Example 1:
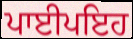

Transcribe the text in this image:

ਪਾਈਪਇਹ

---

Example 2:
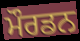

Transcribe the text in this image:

ਮੌਰਡਨ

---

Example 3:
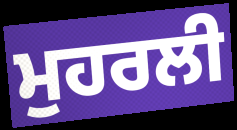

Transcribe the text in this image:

ਮੁਹਰਲੀ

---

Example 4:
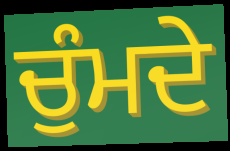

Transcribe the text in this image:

ਚੁੰਮਦੇ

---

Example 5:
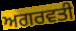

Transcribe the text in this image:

ਅਗਰਵਤੀ